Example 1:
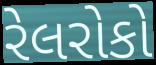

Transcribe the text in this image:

રેલરોકો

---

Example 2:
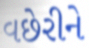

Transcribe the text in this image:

વછેરીને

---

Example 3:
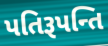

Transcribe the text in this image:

પતિરૂપન્તિ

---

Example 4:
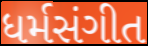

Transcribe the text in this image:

ધર્મસંગીત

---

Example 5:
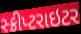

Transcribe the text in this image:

સ્ક્રીપ્ટરાઇટર